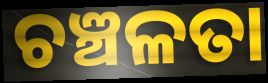
ଚଞ୍ଚଳତା